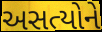
અસત્યોને